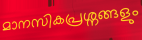
മാനസികപ്രശ്നങ്ങളും